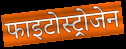
फाइटोस्ट्रोजेन